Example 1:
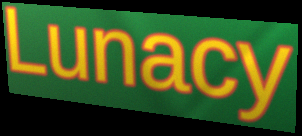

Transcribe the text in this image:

Lunacy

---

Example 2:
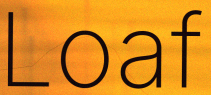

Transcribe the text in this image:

Loaf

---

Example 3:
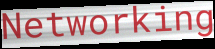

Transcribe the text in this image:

Networking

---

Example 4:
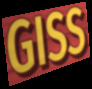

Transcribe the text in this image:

GISS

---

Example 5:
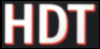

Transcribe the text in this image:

HDT